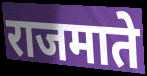
राजमाते